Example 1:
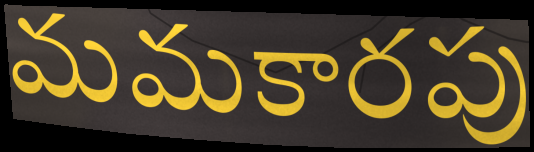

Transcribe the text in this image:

మమకారపు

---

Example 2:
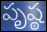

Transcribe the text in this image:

పృష్ఠ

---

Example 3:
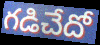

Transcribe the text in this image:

గడిచేదో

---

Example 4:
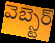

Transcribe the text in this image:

వెబ్స్టెర్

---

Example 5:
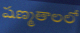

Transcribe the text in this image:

షణ్మతాలలో